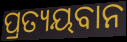
ପ୍ରତ୍ୟୟବାନ